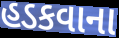
હડકવાના